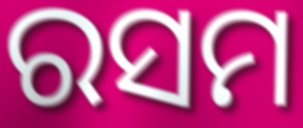
ରସମ